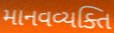
માનવવ્યક્તિ